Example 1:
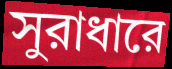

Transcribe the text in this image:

সুরাধারে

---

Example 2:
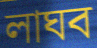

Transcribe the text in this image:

লাঘব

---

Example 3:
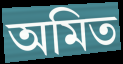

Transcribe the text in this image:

অমিত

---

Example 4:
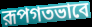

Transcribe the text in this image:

রূপগতভাবে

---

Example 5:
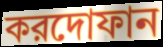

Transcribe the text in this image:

করদোফান